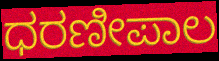
ಧರಣೀಪಾಲ